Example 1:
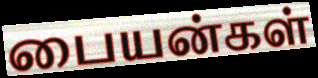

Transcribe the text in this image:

பையன்கள்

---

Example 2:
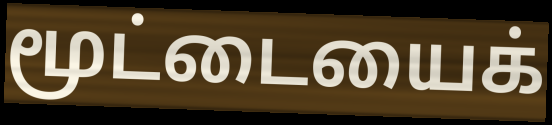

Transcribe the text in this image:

மூட்டையைக்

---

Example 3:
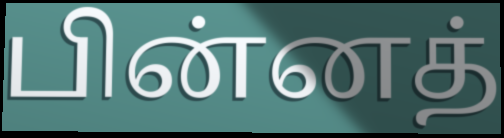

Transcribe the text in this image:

பின்னத்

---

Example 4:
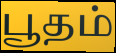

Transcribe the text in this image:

பூதம்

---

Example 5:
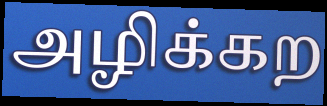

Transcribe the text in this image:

அழிக்கற